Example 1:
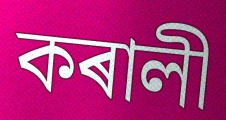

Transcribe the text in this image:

কৰালী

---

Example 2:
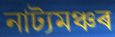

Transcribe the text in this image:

নাট্যমঞ্চৰ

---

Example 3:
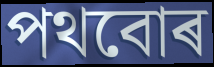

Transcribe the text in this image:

পথবোৰ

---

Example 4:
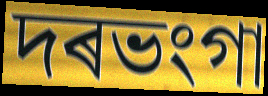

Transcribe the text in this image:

দৰভংগা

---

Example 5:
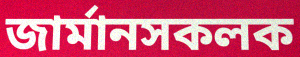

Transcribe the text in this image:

জাৰ্মানসকলক